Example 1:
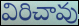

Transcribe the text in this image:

విరిచావు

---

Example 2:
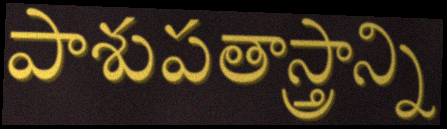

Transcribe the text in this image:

పాశుపతాస్త్రాన్ని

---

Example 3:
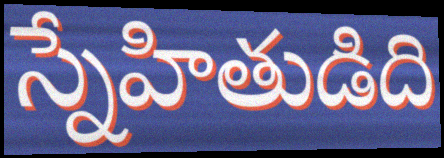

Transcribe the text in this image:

స్నేహితుడిది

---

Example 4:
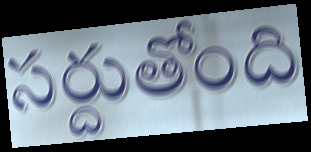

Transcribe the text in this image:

సర్దుతోంది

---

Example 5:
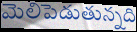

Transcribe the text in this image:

మెలిపెడుతున్నది